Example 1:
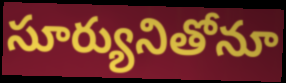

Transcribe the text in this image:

సూర్యునితోనూ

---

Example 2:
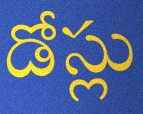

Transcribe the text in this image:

డోస్లు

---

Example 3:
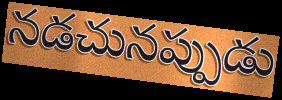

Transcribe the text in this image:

నడచునప్పుడు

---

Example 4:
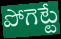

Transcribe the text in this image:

పోగెట్టే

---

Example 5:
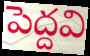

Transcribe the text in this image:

పెద్దవి